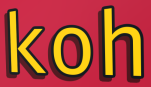
koh